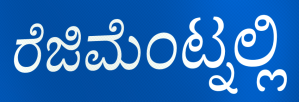
ರೆಜಿಮೆಂಟ್ನಲ್ಲಿ